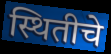
स्थितीचे